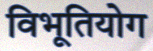
विभूतियोग